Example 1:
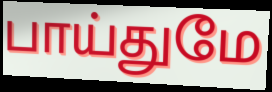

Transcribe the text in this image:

பாய்துமே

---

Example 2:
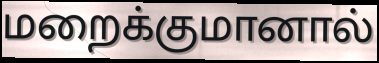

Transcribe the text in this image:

மறைக்குமானால்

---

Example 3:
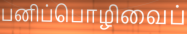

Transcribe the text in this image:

பனிப்பொழிவைப்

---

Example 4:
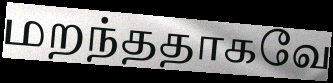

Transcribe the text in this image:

மறந்ததாகவே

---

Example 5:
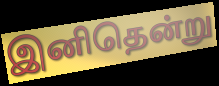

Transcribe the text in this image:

இனிதென்று